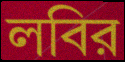
লবির